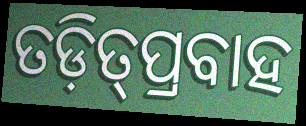
ତଡ଼ିତ୍‍ପ୍ରବାହ